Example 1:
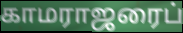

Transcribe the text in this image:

காமராஜரைப்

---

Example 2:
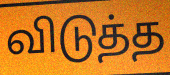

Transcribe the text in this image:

விடுத்த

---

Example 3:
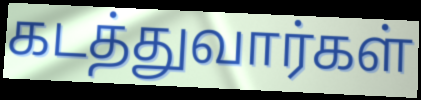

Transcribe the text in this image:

கடத்துவார்கள்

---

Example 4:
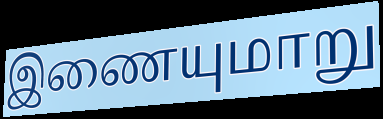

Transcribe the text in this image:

இணையுமாறு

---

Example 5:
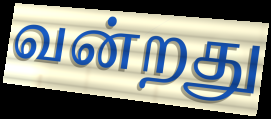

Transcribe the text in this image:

வன்றது